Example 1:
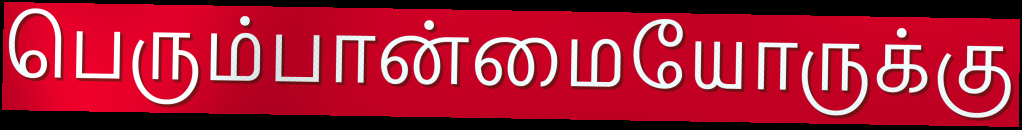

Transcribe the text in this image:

பெரும்பான்மையோருக்கு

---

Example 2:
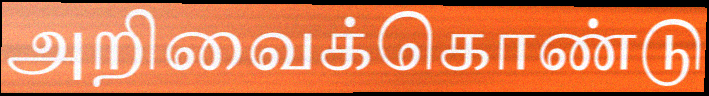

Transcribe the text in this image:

அறிவைக்கொண்டு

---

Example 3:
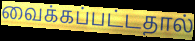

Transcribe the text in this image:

வைக்கப்பட்டதால்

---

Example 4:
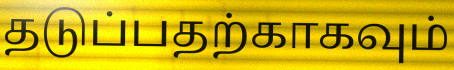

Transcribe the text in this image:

தடுப்பதற்காகவும்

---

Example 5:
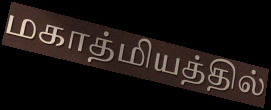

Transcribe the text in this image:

மகாத்மியத்தில்